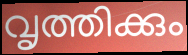
വൃത്തിക്കും